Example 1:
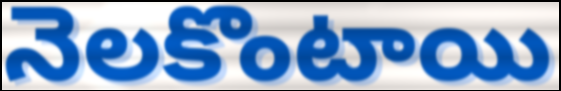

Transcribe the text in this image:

నెలకొంటాయి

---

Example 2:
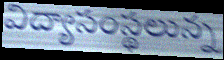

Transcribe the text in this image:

విద్యాసంస్థలున్న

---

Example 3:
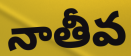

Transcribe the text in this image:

నాతీవ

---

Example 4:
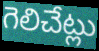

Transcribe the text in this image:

గెలిచేట్లు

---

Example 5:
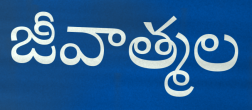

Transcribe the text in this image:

జీవాత్మల